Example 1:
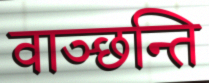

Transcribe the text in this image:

वाञ्छन्ति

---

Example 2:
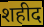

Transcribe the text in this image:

शहीद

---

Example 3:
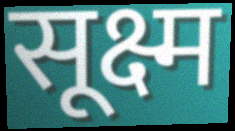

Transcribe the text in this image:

सूक्ष्म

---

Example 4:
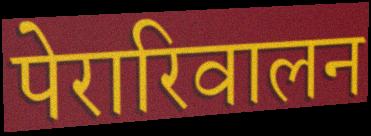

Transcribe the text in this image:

पेरारिवालन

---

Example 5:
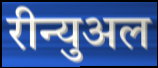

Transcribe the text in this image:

रीन्युअल